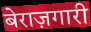
बेराज़गारी